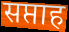
सप्ताह